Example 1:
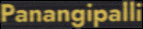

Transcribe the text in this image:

Panangipalli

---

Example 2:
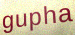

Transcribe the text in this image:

gupha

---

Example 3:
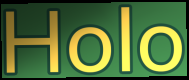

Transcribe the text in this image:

Holo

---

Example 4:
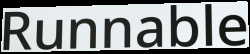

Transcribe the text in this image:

Runnable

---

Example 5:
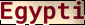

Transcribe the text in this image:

Egypti